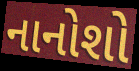
નાનોશો